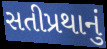
સતીપ્રથાનું